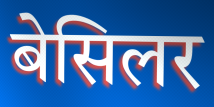
बेसिलर